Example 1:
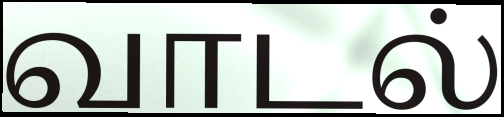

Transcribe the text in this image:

வாடல்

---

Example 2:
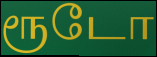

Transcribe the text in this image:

ரூடோ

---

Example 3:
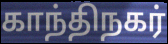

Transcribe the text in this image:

காந்திநகர்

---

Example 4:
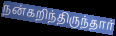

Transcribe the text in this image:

நன்கறிந்திருந்தார்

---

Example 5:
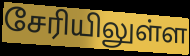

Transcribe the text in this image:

சேரியிலுள்ள